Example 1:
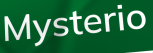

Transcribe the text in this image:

Mysterio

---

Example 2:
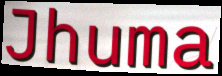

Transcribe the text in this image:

Jhuma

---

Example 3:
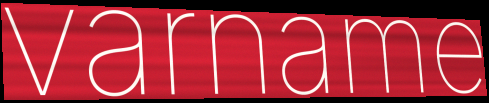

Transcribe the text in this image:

varname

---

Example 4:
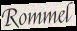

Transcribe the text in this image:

Rommel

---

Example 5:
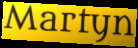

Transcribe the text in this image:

Martyn